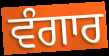
ਵੰਗਾਰ